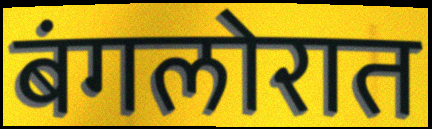
बंगलोरात